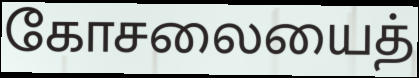
கோசலையைத்